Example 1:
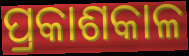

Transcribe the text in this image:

ପ୍ରକାଶକାଳ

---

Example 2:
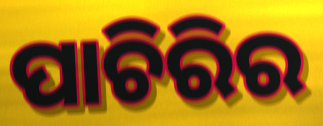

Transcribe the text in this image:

ପାଚିରିର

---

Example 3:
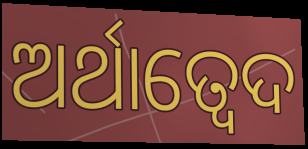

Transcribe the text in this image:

ଅର୍ଥାତ୍ବେଦ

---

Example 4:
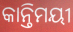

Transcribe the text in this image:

କାନ୍ତିମୟୀ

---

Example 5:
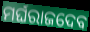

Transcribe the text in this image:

ମର୍ଘରାଜଦେବ